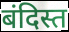
बंदिस्त